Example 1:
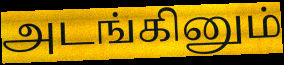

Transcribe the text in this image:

அடங்கினும்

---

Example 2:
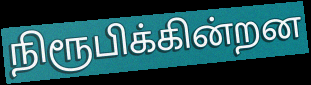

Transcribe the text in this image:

நிரூபிக்கின்றன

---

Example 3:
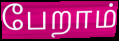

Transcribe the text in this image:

பேறாம்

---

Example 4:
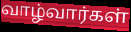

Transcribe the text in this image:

வாழ்வார்கள்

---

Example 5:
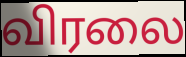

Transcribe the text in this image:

விரலை